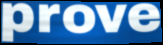
prove